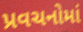
પ્રવચનોમાં